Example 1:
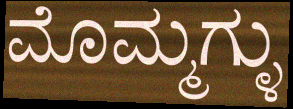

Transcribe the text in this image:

ಮೊಮ್ಮಗ್ಳು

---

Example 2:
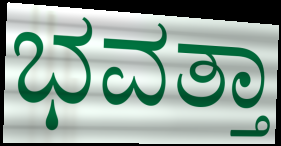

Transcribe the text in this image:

ಭವತ್ತಾ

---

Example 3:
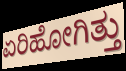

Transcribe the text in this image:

ಏರಿಹೋಗಿತ್ತು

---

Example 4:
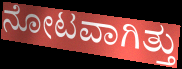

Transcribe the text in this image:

ನೋಟವಾಗಿತ್ತು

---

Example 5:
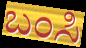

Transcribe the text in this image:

ಬಂಸಿ